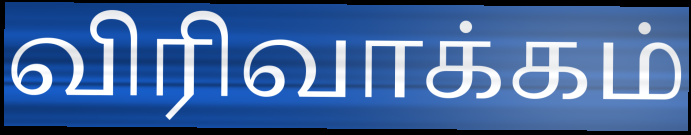
விரிவாக்கம்